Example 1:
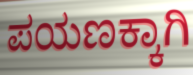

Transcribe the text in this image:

ಪಯಣಕ್ಕಾಗಿ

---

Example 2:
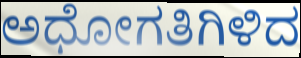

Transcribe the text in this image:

ಅಧೋಗತಿಗಿಳಿದ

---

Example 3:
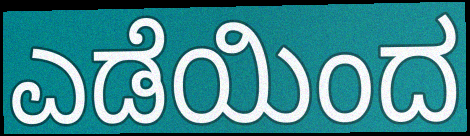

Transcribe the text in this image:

ಎಡೆಯಿಂದ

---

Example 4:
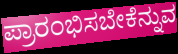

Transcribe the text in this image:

ಪ್ರಾರಂಭಿಸಬೇಕೆನ್ನುವ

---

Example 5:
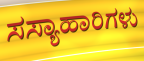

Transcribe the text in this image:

ಸಸ್ಯಾಹಾರಿಗಳು